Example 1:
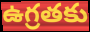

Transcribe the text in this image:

ఉగ్రతకు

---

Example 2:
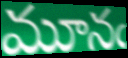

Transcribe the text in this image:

మూనఁ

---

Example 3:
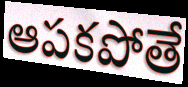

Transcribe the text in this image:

ఆపకపోతే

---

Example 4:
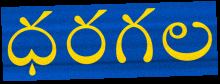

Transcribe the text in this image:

ధరగల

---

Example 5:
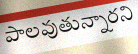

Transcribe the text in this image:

పాలవుతున్నారని